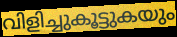
വിളിച്ചുകൂട്ടുകയും